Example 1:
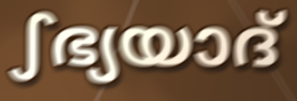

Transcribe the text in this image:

ഽഭ്യയാദ്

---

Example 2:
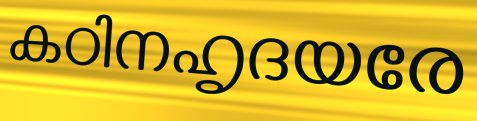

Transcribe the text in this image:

കഠിനഹൃദയരേ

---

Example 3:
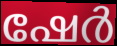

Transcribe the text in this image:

ഷേർ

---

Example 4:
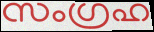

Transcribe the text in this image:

സംഗ്രഹ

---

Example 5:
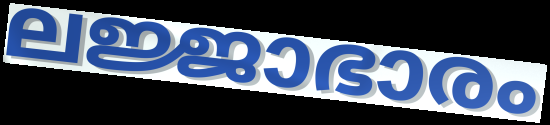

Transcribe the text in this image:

ലജ്ജാഭാരം